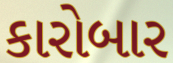
કારોબાર